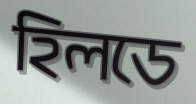
হিলডে